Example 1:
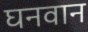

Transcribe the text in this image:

घनवान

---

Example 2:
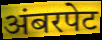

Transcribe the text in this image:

अंबरपेट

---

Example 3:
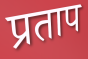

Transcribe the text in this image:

प्रताप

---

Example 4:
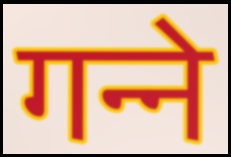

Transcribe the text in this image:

गन्‍ने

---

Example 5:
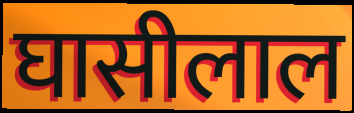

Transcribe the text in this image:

घासीलाल